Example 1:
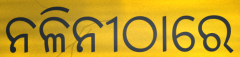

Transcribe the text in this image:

ନଳିନୀଠାରେ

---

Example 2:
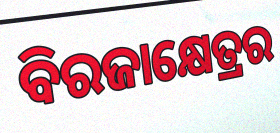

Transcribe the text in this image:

ବିରଜାକ୍ଷେତ୍ରର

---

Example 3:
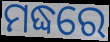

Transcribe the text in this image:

ମଦ୍ଧରେ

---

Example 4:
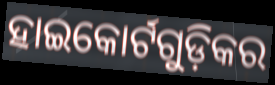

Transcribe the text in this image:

ହାଇକୋର୍ଟଗୁଡ଼ିକର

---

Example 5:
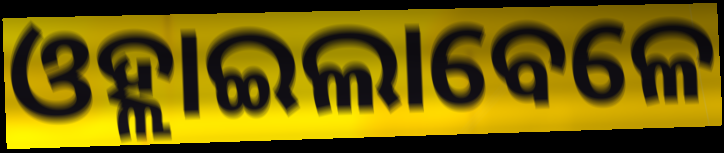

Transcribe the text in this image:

ଓହ୍ଲାଇଲାବେଳେ